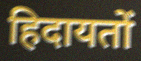
हिदायतों